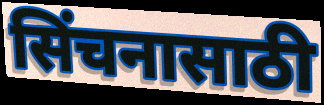
सिंचनासाठी